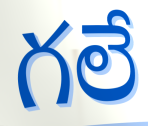
గలే